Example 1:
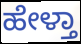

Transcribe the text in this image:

ಹೇಳ್ತಾ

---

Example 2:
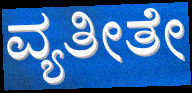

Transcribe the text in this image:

ವ್ಯತೀತೇ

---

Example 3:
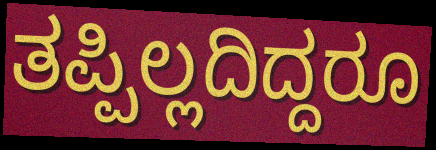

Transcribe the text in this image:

ತಪ್ಪಿಲ್ಲದಿದ್ದರೂ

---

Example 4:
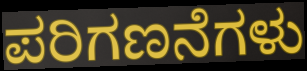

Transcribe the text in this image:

ಪರಿಗಣನೆಗಳು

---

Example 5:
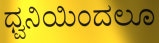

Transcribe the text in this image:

ಧ್ವನಿಯಿಂದಲೂ